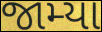
જામ્યા